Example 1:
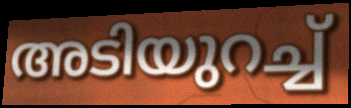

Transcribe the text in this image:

അടിയുറച്ച്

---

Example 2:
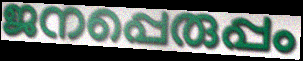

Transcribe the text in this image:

ജനപ്പെരുപ്പം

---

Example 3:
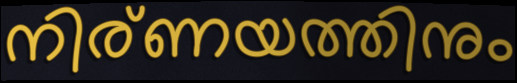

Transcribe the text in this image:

നിര്ണയത്തിനും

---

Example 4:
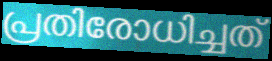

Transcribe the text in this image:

പ്രതിരോധിച്ചത്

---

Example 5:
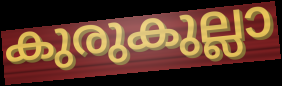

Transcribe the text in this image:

കുരുകുല്ലാ